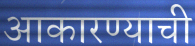
आकारण्याची